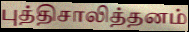
புத்திசாலித்தனம்